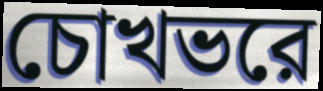
চোখভরে